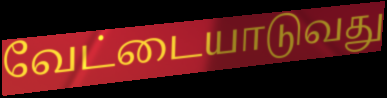
வேட்டையாடுவது